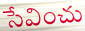
సేవించు